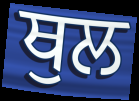
ਥੁਲ